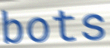
bots